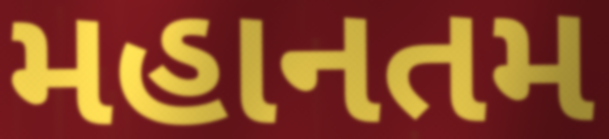
મહાનતમ